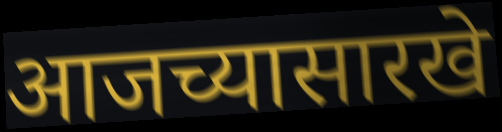
आजच्यासारखे